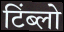
टिंब्लो